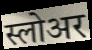
स्लोअर